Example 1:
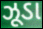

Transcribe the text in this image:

ઝૂડા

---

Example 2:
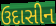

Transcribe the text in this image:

ઉદાસીન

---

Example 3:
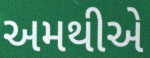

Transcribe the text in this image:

અમથીએ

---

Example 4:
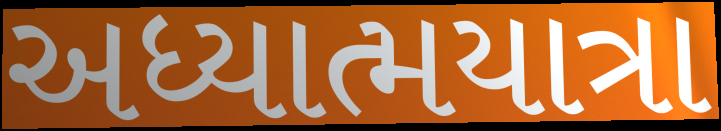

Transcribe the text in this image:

અધ્યાત્મયાત્રા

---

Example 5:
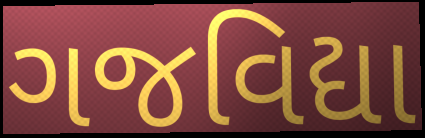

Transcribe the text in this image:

ગજવિદ્યા